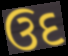
ઉદ